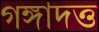
গঙ্গাদত্ত